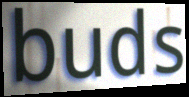
buds